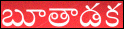
బూతాడక